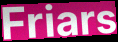
Friars